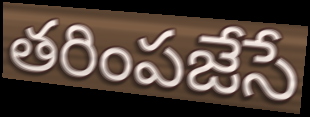
తరింపజేసే